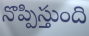
నొప్పిస్తుంది